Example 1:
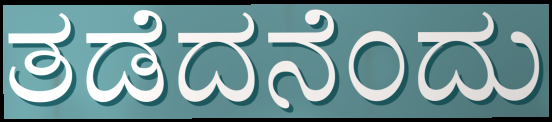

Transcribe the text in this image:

ತಡೆದನೆಂದು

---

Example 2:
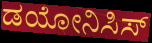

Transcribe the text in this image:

ಡಯೋನಿಸಿಸ್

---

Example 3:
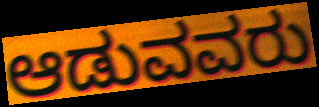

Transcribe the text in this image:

ಆಡುವವರು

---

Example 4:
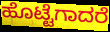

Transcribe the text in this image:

ಹೊಟ್ಟೆಗಾದರೆ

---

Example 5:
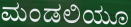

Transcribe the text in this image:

ಮಂಡಲಿಯೂ